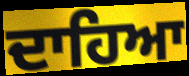
ਦਾਹਿਆ